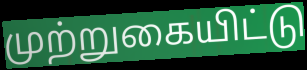
முற்றுகையிட்டு